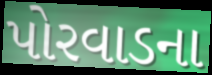
પોરવાડના